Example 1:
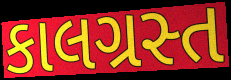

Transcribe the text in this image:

કાલગ્રસ્ત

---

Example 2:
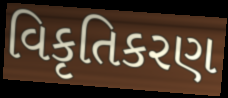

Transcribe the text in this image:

વિકૃતિકરણ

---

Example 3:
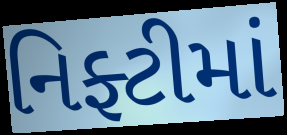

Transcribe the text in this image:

નિફ્ટીમાં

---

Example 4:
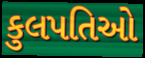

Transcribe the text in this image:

કુલપતિઓ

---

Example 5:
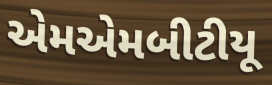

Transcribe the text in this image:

એમએમબીટીયૂ